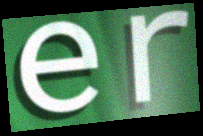
er